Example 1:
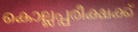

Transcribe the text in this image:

കൊല്ലപ്പരീക്ഷക്ക്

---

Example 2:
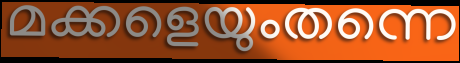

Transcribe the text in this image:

മക്കളെയുംതന്നെ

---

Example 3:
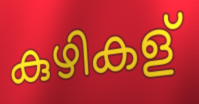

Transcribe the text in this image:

കുഴികള്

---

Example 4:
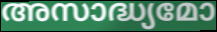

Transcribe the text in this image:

അസാദ്ധ്യമോ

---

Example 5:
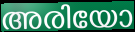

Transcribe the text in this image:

അരിയോ